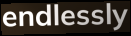
endlessly